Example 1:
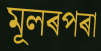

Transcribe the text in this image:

মূলৰপৰা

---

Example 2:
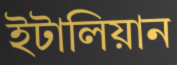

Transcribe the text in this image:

ইটালিয়ান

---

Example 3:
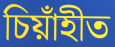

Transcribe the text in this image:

চিয়াঁহীত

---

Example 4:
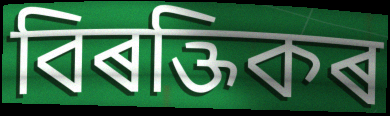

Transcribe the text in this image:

বিৰক্তিকৰ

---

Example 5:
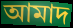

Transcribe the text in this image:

আমাদ